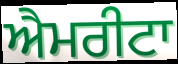
ਐਮਰੀਟਾ